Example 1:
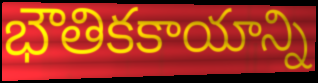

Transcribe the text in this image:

భౌతికకాయాన్ని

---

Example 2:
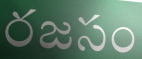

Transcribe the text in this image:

రజసం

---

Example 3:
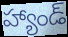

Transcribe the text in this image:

హ్యాండ్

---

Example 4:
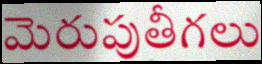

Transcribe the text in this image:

మెరుపుతీగలు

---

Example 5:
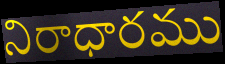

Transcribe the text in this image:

నిరాధారము